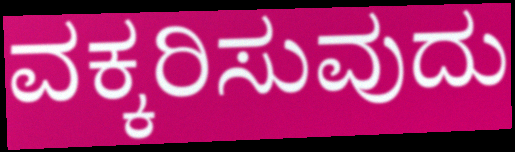
ವಕ್ಕರಿಸುವುದು